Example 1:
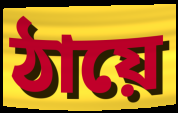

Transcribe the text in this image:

ঠায়ে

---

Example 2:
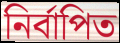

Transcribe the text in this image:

নিৰ্বাপিত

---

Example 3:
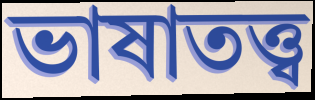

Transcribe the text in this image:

ভাষাতত্ত্ব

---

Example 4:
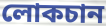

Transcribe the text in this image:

লোকচান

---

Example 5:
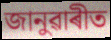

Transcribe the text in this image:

জানুৱাৰীত